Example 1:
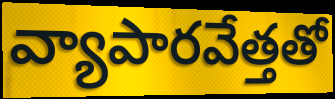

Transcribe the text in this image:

వ్యాపారవేత్తతో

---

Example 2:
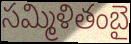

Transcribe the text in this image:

సమ్మిళితంబై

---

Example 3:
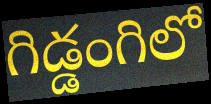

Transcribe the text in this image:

గిడ్డంగిలో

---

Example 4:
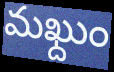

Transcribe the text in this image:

మఖ్దుం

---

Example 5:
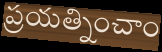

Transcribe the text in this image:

ప్రయత్నించాం